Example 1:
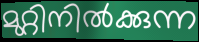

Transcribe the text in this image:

മുറ്റിനിൽക്കുന്ന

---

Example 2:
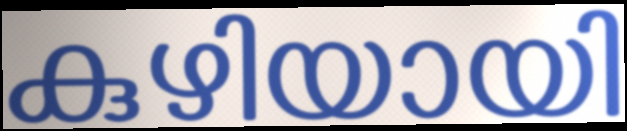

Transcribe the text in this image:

കുഴിയായി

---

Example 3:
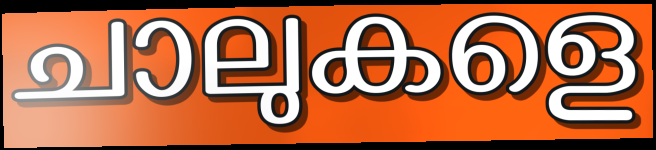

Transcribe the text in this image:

ചാലുകളെ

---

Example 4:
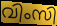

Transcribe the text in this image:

വിംസി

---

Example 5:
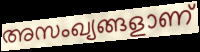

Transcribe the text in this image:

അസംഖ്യങ്ങളാണ്